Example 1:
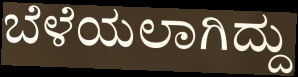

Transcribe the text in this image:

ಬೆಳೆಯಲಾಗಿದ್ದು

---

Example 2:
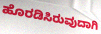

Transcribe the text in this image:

ಹೊರಡಿಸಿರುವುದಾಗಿ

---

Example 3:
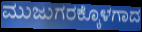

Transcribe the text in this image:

ಮುಜುಗರಕ್ಕೊಳಗಾದ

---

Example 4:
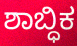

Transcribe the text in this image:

ಶಾಬ್ಧಿಕ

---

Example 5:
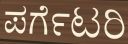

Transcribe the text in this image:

ಪರ್ಗೆಟರಿ